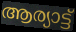
ആര്യാട്ട്